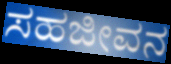
ಸಹಜೀವನ